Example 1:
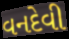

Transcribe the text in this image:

વનદેવી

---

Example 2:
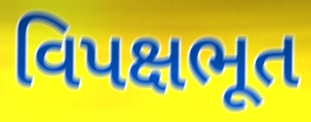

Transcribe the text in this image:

વિપક્ષભૂત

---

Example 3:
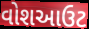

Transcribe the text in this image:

વોશઆઉટ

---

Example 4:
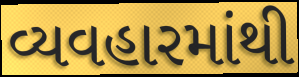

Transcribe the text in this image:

વ્યવહારમાંથી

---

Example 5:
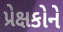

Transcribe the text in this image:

પ્રેક્ષકોને